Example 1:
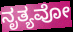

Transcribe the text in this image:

ನೃತ್ಯವೋ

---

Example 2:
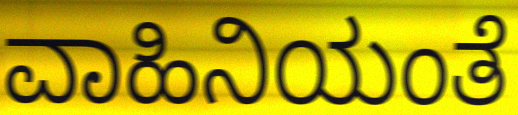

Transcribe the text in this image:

ವಾಹಿನಿಯಂತೆ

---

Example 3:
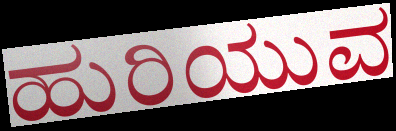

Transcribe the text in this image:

ಹುರಿಯುವ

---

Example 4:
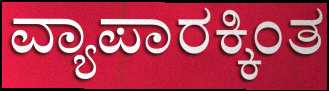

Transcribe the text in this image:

ವ್ಯಾಪಾರಕ್ಕಿಂತ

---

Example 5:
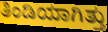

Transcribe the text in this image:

ತಿಂಡಿಯಾಗಿತ್ತು